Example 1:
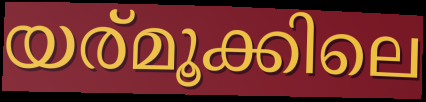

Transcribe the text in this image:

യര്മൂക്കിലെ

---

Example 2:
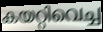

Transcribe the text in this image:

കയറ്റിവെച്ച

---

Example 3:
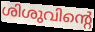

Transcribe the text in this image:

ശിശുവിന്റെ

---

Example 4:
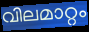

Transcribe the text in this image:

വിലമാറ്റം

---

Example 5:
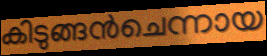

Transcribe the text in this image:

കിടുങ്ങൻചെന്നായ